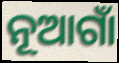
ନୂଆଗାଁ